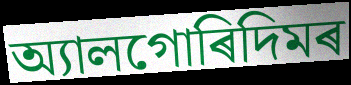
অ্যালগোৰিদিমৰ